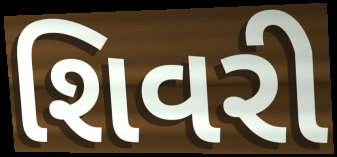
શિવરી